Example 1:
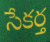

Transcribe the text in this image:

సేకర్త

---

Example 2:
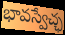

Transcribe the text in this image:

భావస్వేచ్ఛ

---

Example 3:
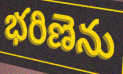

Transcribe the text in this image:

భరిణెను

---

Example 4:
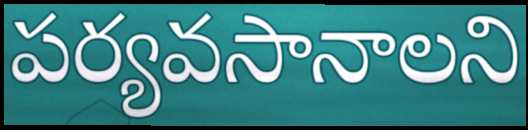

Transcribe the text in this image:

పర్యవసానాలని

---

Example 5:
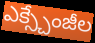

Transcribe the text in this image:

ఎక్స్చేంజీల